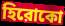
হিরোকো